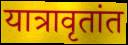
यात्रावृतांत